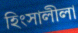
হিংসালীলা